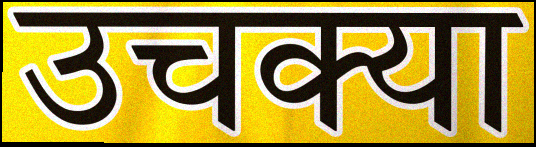
उचक्या